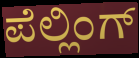
ಪೆಲ್ಲಿಂಗ್